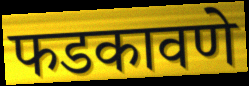
फडकावणे